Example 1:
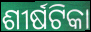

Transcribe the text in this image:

ଶୀର୍ଷଟିକା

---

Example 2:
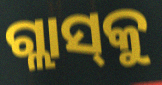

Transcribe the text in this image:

ଗ୍ଲାସ୍‌କୁ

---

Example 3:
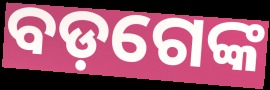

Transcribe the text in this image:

ବଡ଼ଗେଙ୍କ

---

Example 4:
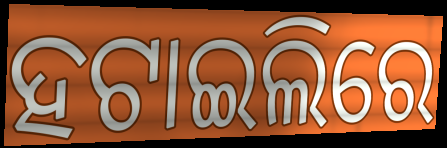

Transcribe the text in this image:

ହଟାଇଲିରେ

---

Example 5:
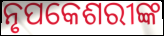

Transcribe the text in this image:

ନୃପକେଶରୀଙ୍କ